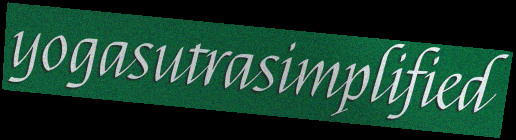
yogasutrasimplified